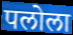
पलोला